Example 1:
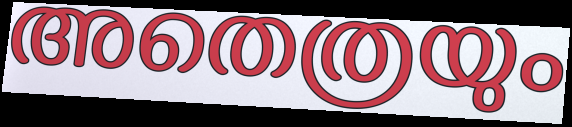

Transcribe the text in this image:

അതെത്രയും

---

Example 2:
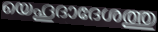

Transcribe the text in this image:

യെഹൂദാദേശത്തു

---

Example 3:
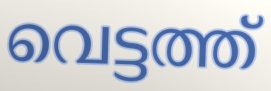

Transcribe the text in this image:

വെട്ടത്ത്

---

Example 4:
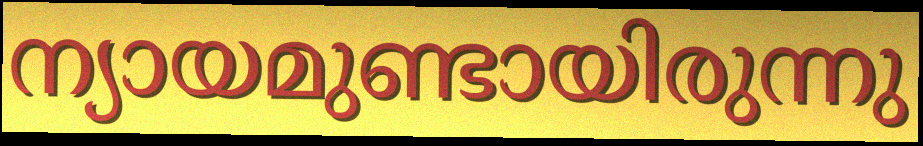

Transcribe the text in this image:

ന്യായമുണ്ടായിരുന്നു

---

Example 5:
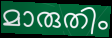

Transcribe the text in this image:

മാരുതിം